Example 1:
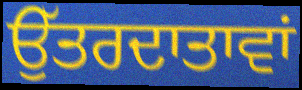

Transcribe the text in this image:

ਉੱਤਰਦਾਤਾਵਾਂ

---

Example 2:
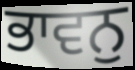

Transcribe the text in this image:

ਭਾਵਨੁ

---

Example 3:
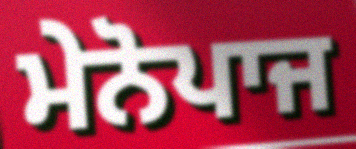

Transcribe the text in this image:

ਮੇਨੋਪਾਜ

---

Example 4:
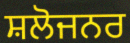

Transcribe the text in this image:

ਸ਼ਲੋਜਨਰ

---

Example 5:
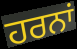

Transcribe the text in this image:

ਹਰਨਾਂ